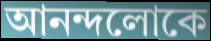
আনন্দলোকে